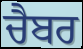
ਚੈਬਰ